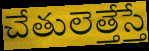
చేతులెత్తేస్తే